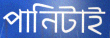
পানিটাই